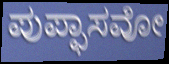
ಪುಪ್ಫಾಸವೋ